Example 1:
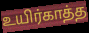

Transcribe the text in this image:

உயிர்காத்த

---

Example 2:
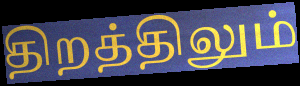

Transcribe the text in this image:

திறத்திலும்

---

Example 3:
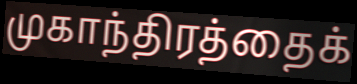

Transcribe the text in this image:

முகாந்திரத்தைக்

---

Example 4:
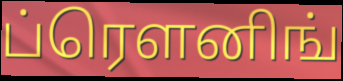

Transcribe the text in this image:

ப்ரௌனிங்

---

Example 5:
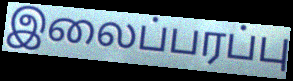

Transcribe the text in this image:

இலைப்பரப்பு